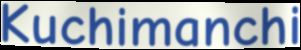
Kuchimanchi